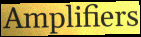
Amplifiers